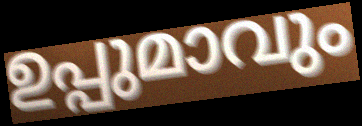
ഉപ്പുമാവും